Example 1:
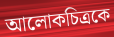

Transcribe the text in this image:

আলোকচিত্রকে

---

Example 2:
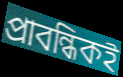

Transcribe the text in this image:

প্রাবন্ধিকই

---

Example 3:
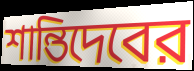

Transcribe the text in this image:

শান্তিদেবের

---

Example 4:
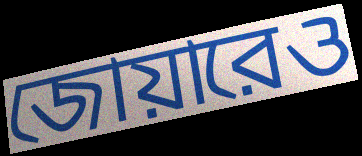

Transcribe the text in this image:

জোয়ারেও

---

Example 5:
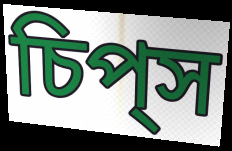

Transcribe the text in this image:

চিপ্‌স